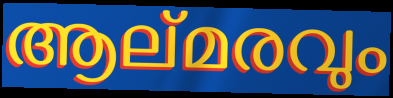
ആല്മരവും